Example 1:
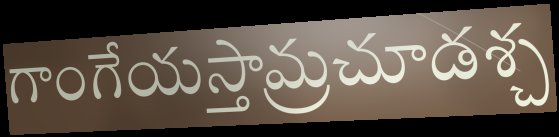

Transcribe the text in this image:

గాంగేయస్తామ్రచూడశ్చ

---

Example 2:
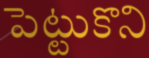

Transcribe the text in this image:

పెట్టుకొని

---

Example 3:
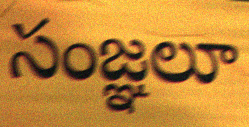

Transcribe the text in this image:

సంజ్ఞలూ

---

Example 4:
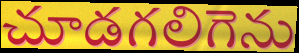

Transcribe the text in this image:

చూడగలిగెను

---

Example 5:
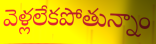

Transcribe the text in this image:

వెళ్లలేకపోతున్నాం